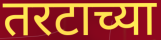
तरटाच्या